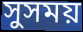
সুসময়